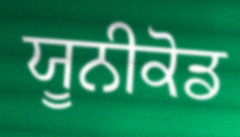
ਯੂਨੀਕੋਡ